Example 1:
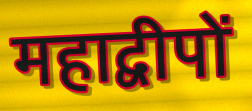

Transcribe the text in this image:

महाद्वीपों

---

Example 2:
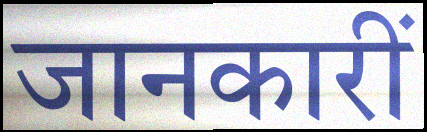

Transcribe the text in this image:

जानकारीं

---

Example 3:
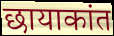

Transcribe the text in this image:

छायाकांत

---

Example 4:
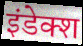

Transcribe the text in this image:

इंडेक्श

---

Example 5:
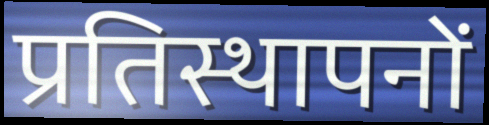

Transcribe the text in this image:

प्रतिस्थापनों